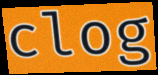
clog